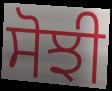
ਸੋਝੀ